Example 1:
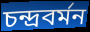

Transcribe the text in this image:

চন্দ্রবর্মন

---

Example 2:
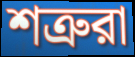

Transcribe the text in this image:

শত্রুরা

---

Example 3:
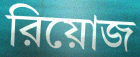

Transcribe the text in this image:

রিয়োজ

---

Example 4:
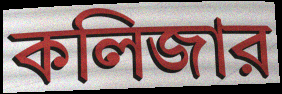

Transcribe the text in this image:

কলিজার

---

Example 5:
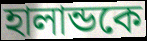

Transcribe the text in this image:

হালান্ডকে